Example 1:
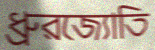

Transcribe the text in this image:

ধ্ৰুৱজ্যোতি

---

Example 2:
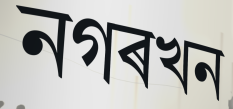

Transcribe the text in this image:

নগৰখন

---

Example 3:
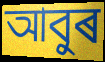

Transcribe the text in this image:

আবুৰ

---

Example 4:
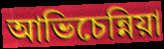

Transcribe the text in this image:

আভিচেন্নিয়া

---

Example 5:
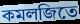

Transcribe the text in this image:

কমলজিতে